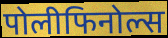
पोलीफिनोल्स